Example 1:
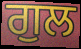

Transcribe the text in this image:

ਗੁਲ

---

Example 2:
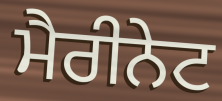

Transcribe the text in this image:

ਮੈਰੀਨੇਟ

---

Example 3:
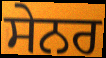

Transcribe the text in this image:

ਸੇਨਰ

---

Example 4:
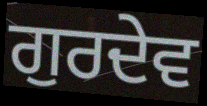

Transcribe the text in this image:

ਗੁਰਦੇਵ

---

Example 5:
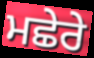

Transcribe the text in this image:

ਮਛੇਰੇ